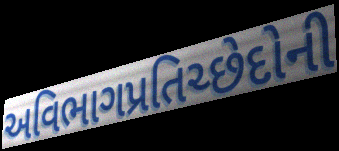
અવિભાગપ્રતિચ્છેદોની